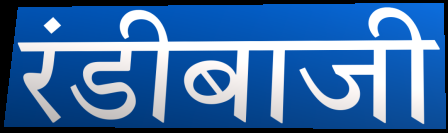
रंडीबाजी